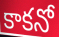
కాకనో